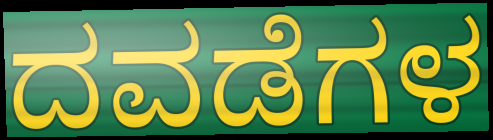
ದವಡೆಗಳ